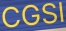
CGSI